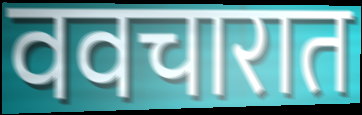
ववचारात